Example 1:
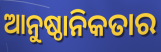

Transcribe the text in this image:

ଆନୁଷ୍ଠାନିକତାର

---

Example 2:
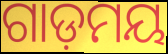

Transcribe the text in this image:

ଗାଡ଼ମୟ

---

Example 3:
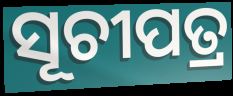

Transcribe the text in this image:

ସୂଚୀପତ୍ର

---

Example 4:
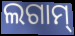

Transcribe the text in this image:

ଲଗାମ୍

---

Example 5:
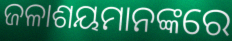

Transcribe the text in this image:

ଜଳାଶୟମାନଙ୍କରେ